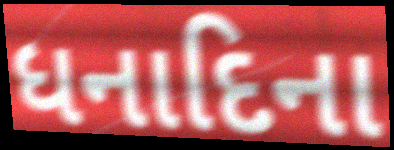
ધનાદિના